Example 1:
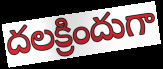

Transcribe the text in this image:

దలక్రిందుగా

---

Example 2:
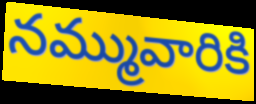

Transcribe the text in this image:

నమ్మువారికి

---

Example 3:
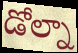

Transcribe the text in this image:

డోల్నా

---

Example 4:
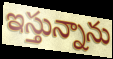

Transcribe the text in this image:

ఇస్తున్నాను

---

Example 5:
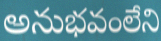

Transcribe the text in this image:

అనుభవంలేని